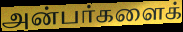
அன்பர்களைக்